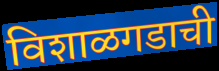
विशाळगडाची